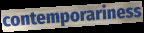
contemporariness